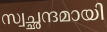
സ്വച്ഛന്ദമായി